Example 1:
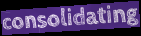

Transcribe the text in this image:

consolidating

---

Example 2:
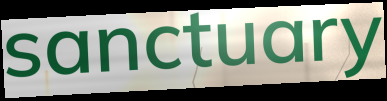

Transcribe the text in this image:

sanctuary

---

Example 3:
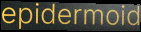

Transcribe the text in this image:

epidermoid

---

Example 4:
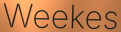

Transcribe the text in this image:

Weekes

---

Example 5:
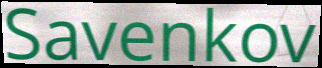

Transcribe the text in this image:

Savenkov